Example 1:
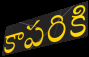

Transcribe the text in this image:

కాపరికి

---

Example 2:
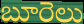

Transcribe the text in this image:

బూరెలు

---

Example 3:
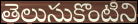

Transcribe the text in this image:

తెలుసుకొంటిని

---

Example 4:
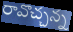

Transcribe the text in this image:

రావొచ్చన్న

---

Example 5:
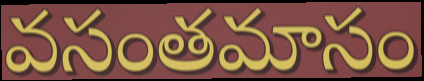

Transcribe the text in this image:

వసంతమాసం